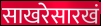
साखरेसारखं